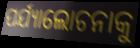
ପର୍ଯ୍ୟାଲୋଚନାକୁ